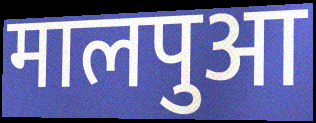
मालपुआ